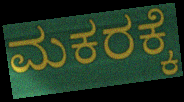
ಮಕರಕ್ಕೆ